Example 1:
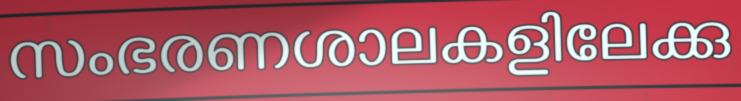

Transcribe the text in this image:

സംഭരണശാലകളിലേക്കു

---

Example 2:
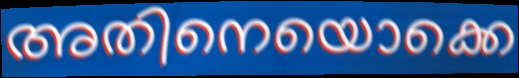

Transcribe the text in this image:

അതിനെയൊക്കെ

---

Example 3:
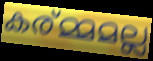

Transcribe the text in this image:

കര്മ്മമല്ല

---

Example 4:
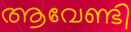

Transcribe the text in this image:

ആവേണ്ടി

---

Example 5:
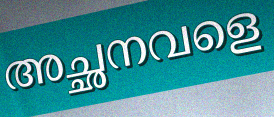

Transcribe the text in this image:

അച്ഛനവളെ